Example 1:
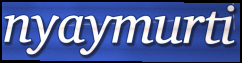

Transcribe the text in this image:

nyaymurti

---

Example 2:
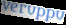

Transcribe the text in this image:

veruppu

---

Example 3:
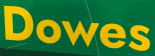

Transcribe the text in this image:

Dowes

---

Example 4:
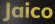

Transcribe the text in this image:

Jaico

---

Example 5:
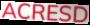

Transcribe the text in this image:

ACRESD